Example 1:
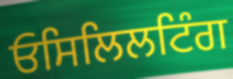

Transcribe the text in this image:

ਓਸਿਲਿਲਟਿੰਗ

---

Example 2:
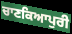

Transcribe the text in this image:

ਚਾਣਕਿਆਪੁਰੀ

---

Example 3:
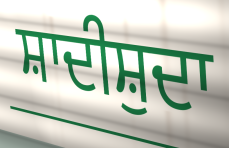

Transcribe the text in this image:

ਸ਼ਾਦੀਸ਼ੁਦਾ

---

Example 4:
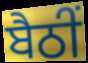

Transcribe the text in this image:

ਬੈਠੀਂ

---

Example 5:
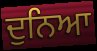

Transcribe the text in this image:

ਦੁਨਿਆ